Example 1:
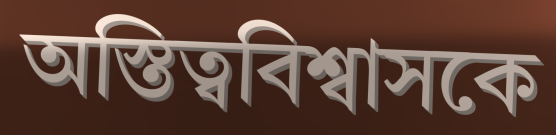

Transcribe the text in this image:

অস্তিত্ববিশ্বাসকে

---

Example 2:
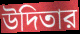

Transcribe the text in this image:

উদিতার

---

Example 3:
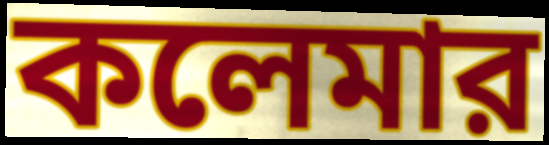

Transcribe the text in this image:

কলেমার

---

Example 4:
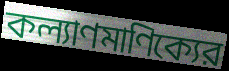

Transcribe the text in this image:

কল্যাণমাণিক্যের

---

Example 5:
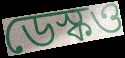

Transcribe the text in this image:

ডেস্কও